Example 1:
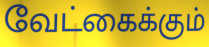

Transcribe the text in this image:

வேட்கைக்கும்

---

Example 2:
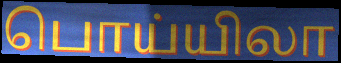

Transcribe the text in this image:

பொய்யிலா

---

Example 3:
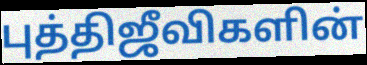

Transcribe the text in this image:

புத்திஜீவிகளின்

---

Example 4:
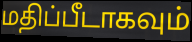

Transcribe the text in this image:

மதிப்பீடாகவும்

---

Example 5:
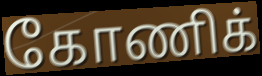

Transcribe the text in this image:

கோணிக்